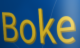
Boke